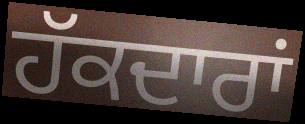
ਹੱਕਦਾਰਾਂ